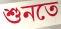
শুনতে